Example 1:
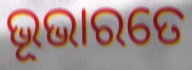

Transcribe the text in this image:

ଭୂଭାରତେ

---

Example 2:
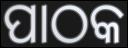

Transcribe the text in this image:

ପାଠକ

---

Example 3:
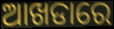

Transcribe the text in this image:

ଆଖଡାରେ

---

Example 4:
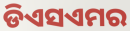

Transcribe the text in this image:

ଡିଏସଏମର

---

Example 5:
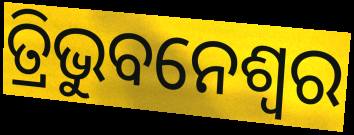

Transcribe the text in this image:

ତ୍ରିଭୁବନେଶ୍ବର